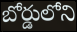
బోర్డులోని